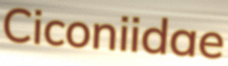
Ciconiidae